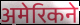
अमेरिकने